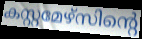
കസ്റ്റമേഴ്സിന്റെ